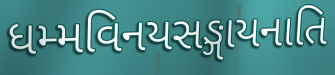
ધમ્મવિનયસઙ્ગાયનાતિ